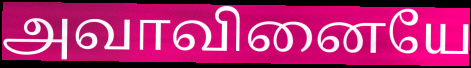
அவாவினையே